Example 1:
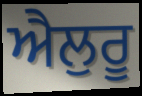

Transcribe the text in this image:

ਐਲੁਰੂ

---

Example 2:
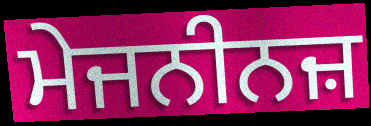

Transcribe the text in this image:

ਮੇਜਨੀਨਜ਼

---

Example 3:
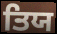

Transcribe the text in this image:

ਤਿਯ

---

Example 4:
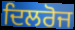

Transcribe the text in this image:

ਦਿਲਰੋਜ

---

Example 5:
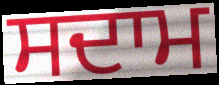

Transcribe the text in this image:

ਸਦਾਮ